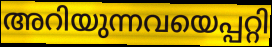
അറിയുന്നവയെപ്പറ്റി